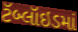
ટૅબ્લૉઇડમાં